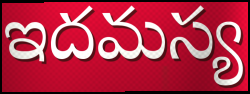
ఇదమస్య